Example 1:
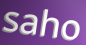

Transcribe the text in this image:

saho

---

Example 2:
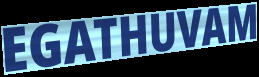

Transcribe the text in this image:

EGATHUVAM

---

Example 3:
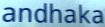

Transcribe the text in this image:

andhaka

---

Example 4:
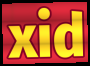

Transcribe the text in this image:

xid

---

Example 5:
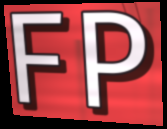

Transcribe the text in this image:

FP